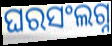
ଘରସଂଲଗ୍ନ